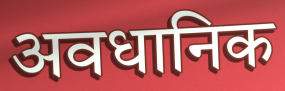
अवधानिक